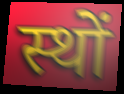
स्थों